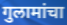
गुलामांचा